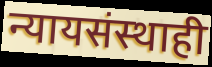
न्यायसंस्थाही